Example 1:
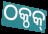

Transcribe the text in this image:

ଠକ୍ଠକ୍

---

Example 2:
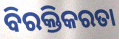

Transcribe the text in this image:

ବିରକ୍ତିକରତା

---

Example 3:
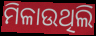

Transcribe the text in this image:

ମିଳାଉଥିଲି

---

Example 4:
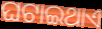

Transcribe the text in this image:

ଘଟାଇଥାଏ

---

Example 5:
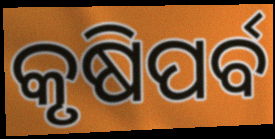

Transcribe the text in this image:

କୃଷିପର୍ବ